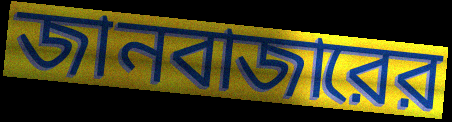
জানবাজারের